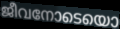
ജീവനോടെയൊ